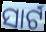
ସାର୍ଟ